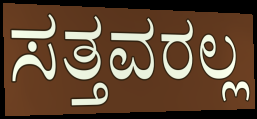
ಸತ್ತವರಲ್ಲ